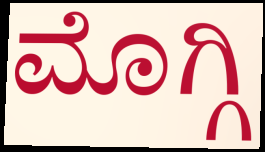
ಮೊಗ್ಗಿ